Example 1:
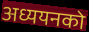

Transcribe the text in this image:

अध्ययनको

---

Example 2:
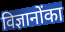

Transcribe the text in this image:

विज्ञानोंका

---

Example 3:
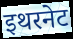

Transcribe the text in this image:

इथरनेट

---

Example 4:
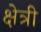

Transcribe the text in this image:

क्षेत्री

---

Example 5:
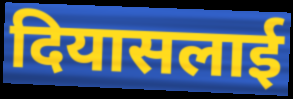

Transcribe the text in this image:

दियासलाई